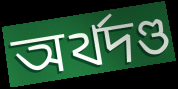
অর্থদণ্ড